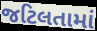
જટિલતામાં